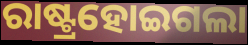
ରାଷ୍ଟ୍ରହୋଇଗଲା